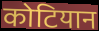
कोटियान